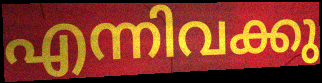
എന്നിവക്കു